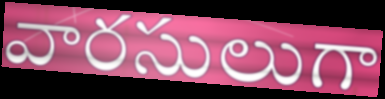
వారసులుగా